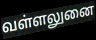
வள்ளலுனை